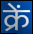
क्रें